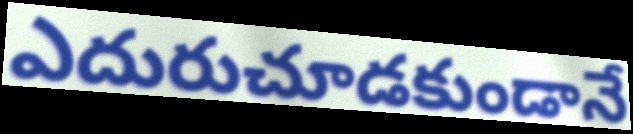
ఎదురుచూడకుండానే